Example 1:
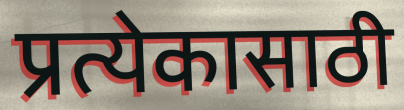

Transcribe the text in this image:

प्रत्येकासाठी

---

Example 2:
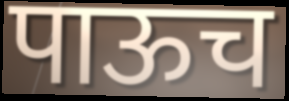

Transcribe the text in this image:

पाऊच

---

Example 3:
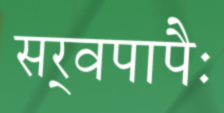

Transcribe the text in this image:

सर्वपापैः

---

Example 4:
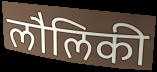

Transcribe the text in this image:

लौलिकी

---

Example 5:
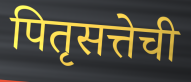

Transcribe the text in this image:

पितृसत्तेची